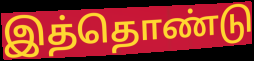
இத்தொண்டு